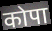
कोपा